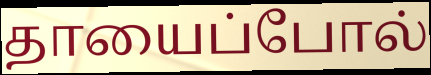
தாயைப்போல்